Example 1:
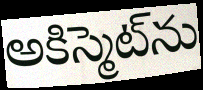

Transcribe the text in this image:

అకిస్మెట్‌ను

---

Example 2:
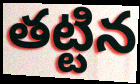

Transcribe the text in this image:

తట్టిన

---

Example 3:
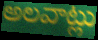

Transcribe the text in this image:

అలవాట్లు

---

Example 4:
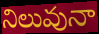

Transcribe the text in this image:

నిలువునా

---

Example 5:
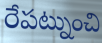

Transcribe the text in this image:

రేపట్నుంచి